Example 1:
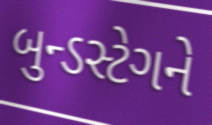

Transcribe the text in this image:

બુન્ડસ્ટેગને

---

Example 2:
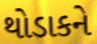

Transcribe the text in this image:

થોડાકને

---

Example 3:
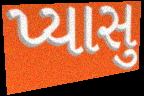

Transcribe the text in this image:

પ્યાસુ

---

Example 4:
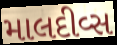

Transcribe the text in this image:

માલદીવ્સ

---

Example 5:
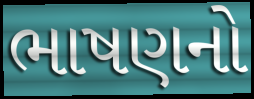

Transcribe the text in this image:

ભાષણનો